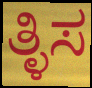
ತ್ಳಿಸ